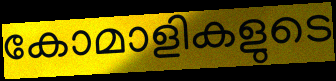
കോമാളികളുടെ